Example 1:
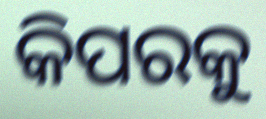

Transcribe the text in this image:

କିପରକୁ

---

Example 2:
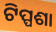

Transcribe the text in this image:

ଟିପ୍ପଶା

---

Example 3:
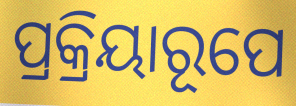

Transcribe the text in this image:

ପ୍ରକ୍ରିୟାରୂପେ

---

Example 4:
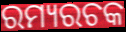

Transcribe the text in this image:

ରମ୍ୟରଚକ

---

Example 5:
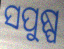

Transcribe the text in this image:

ସପୁଷ୍ପ